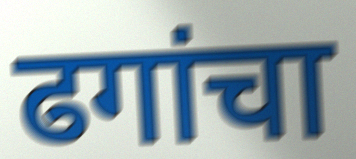
ढगांचा